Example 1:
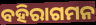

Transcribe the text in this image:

ବହିରାଗମନ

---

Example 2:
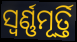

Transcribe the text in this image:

ସ୍ଵର୍ଣ୍ଣମୂର୍ତ୍ତି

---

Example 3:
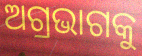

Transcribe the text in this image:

ଅଗ୍ରଭାଗକୁ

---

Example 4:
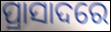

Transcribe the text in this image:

ପ୍ରାସାଦରେ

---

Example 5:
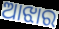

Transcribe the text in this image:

ଆଝାର